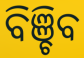
ବିଞ୍ଚିବ